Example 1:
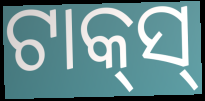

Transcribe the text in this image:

ଟାକ୍‍ସ୍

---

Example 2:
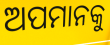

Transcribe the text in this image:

ଅପମାନକୁ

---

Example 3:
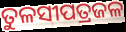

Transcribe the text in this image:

ତୁଳସୀପତ୍ରଜଳ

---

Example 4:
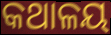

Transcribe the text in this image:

କଥାଳୟ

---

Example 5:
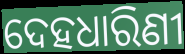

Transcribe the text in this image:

ଦେହଧାରିଣୀ